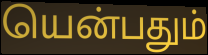
யென்பதும்